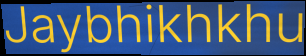
Jaybhikhkhu